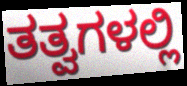
ತತ್ವಗಳಲ್ಲಿ